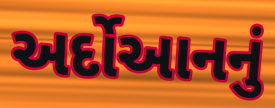
અર્દોઆનનું